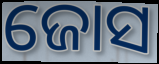
ଜୋସ